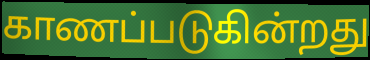
காணப்படுகின்றது